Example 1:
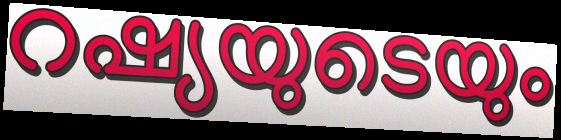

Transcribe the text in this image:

റഷ്യയുടെയും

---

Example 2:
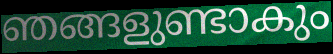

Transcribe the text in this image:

ഞങ്ങളുണ്ടാകും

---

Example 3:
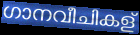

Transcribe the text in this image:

ഗാനവീചികള്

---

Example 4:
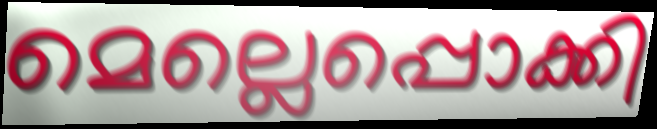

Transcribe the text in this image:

മെല്ലെപ്പൊക്കി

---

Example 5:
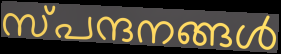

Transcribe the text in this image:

സ്പന്ദനങ്ങൾ